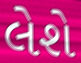
લેશે